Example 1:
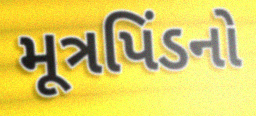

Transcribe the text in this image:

મૂત્રપિંડનો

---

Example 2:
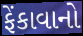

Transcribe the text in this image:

ફેંકાવાનો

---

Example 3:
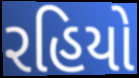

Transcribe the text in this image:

રહિયો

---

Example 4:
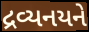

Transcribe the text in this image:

દ્રવ્યનયને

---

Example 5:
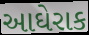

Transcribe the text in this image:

આઘેરાક